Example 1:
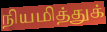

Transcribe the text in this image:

நியமித்துக்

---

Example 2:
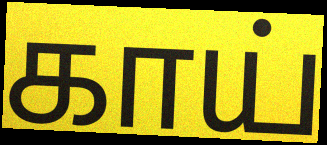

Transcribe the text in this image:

காய்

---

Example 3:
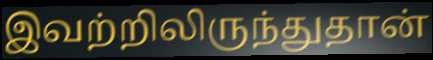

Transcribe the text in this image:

இவற்றிலிருந்துதான்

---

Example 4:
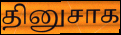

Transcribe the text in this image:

தினுசாக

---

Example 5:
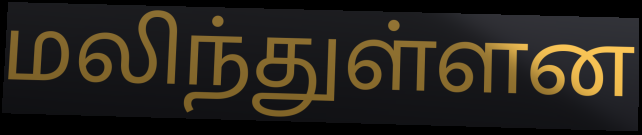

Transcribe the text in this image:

மலிந்துள்ளன